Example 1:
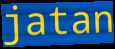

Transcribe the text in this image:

jatan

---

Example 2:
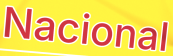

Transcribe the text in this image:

Nacional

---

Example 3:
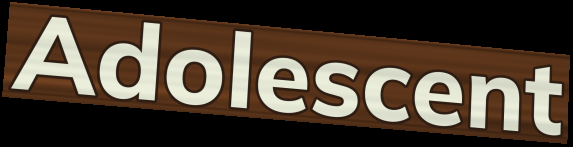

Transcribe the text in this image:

Adolescent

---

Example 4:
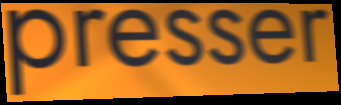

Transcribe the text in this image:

presser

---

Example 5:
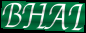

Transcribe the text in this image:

BHAI